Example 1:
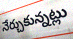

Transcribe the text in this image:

నేర్చుకున్నట్లు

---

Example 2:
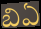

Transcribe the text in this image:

బిఏ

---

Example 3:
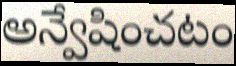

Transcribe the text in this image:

అన్వేషించటం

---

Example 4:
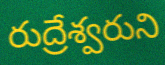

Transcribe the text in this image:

రుద్రేశ్వరుని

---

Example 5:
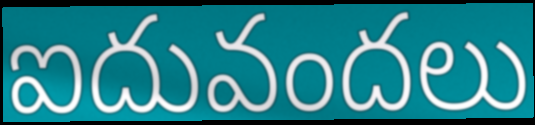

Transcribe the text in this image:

ఐదువందలు